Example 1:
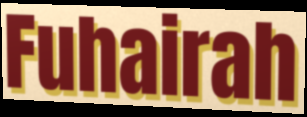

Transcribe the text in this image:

Fuhairah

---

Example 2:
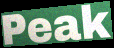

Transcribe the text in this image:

Peak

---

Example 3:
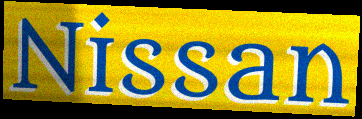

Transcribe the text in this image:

Nissan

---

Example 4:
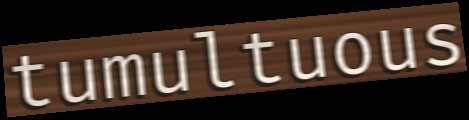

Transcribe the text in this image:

tumultuous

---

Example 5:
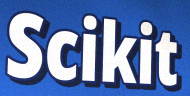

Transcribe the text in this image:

Scikit